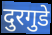
दुरगुडे